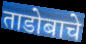
ताडोबाचे